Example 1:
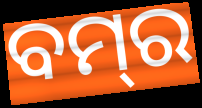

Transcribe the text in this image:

ବମ୍‌ର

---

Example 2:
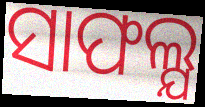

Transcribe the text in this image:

ସାଫଲ୍ଯ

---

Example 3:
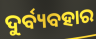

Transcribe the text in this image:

ଦୁର୍ବ୍ୟବହାର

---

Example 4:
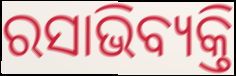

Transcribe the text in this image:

ରସାଭିବ୍ୟକ୍ତି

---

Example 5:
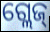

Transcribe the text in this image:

ଗ୍ଲେଜ୍